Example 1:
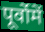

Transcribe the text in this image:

पूर्वोमें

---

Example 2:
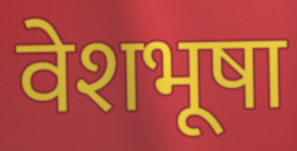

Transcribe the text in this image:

वेशभूषा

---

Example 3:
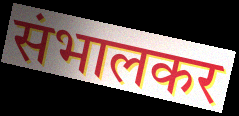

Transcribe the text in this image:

संभालकर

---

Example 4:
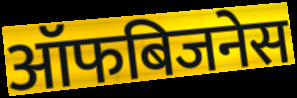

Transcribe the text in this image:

ऑफबिजनेस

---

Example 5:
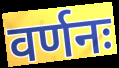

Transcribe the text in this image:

वर्णनः